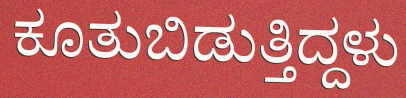
ಕೂತುಬಿಡುತ್ತಿದ್ದಳು